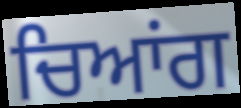
ਚਿਆਂਗ